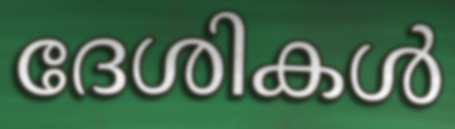
ദേശികൾ